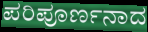
ಪರಿಪೂರ್ಣನಾದ